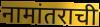
नामांतराची